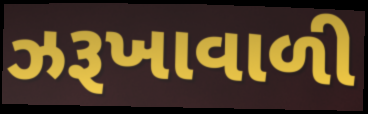
ઝરૂખાવાળી